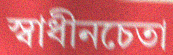
স্বাধীনচেতা